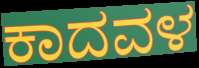
ಕಾದವಳ